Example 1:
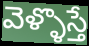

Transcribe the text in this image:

వెళ్ళొస్తే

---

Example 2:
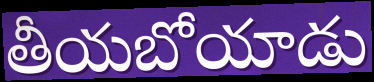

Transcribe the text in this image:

తీయబోయాడు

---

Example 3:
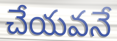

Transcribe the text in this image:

చేయవనే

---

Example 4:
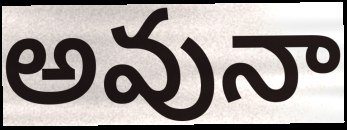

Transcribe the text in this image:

అవునా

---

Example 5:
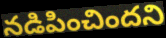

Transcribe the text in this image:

నడిపించిందని